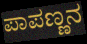
ಪಾಪಣ್ಣನ